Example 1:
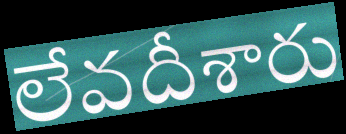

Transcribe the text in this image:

లేవదీశారు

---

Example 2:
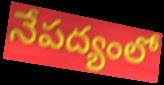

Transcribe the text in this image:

నేపద్యంలో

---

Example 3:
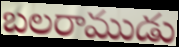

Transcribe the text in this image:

బలరాముడు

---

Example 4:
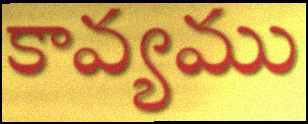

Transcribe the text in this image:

కావ్యము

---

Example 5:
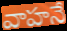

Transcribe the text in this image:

వాహనే